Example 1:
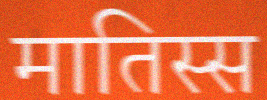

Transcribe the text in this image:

मातिस्स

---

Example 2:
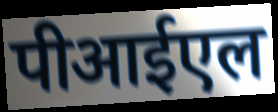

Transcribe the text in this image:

पीआईएल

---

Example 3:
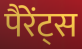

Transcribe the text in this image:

पैरेंट्स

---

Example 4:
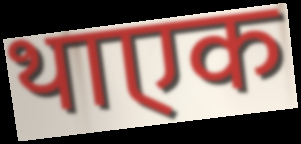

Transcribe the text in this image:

थाएक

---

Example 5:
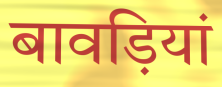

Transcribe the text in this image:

बावड़ियां